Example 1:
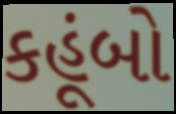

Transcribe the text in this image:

કહૂંબો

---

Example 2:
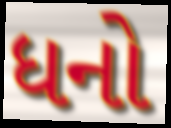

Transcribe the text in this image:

ધનો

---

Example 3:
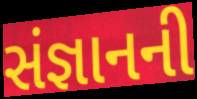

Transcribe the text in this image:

સંજ્ઞાનની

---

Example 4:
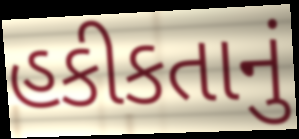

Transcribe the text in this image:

હકીકતાનું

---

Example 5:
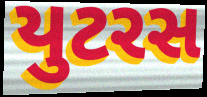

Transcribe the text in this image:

યુટરસ